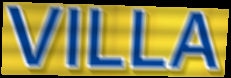
VILLA